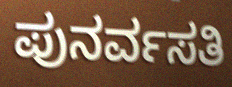
ಪುನರ್ವಸತಿ